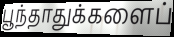
பூந்தாதுக்களைப்